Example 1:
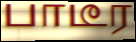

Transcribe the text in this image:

பாடீர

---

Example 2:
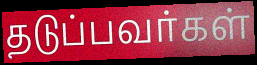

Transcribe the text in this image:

தடுப்பவர்கள்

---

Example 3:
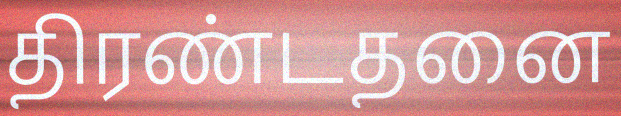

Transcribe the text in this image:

திரண்டதனை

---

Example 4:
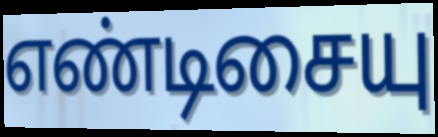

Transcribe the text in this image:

எண்டிசையு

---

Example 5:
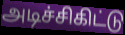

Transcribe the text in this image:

அடிச்சிகிட்டு